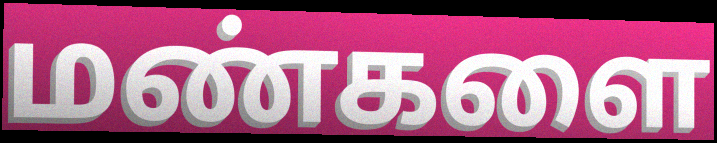
மண்களை